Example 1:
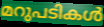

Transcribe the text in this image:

മറുപടികൾ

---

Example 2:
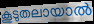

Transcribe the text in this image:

കൂടുതലായാൽ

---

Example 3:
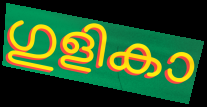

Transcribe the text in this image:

ഗുളികാ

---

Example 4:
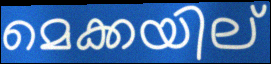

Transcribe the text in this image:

മെക്കയില്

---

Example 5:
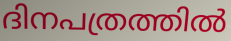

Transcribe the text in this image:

ദിനപത്രത്തിൽ